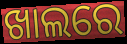
ଖାଲରେ